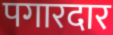
पगारदार